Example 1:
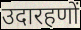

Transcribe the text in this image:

उदारहणों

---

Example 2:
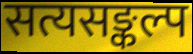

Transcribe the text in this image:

सत्यसङ्कल्प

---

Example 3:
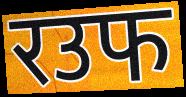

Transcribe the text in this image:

रउफ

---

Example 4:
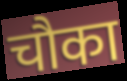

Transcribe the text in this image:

चौका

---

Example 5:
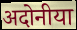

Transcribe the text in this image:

अदोनीया